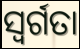
ସ୍ୱର୍ଗତା